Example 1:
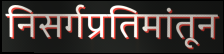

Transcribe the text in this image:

निसर्गप्रतिमांतून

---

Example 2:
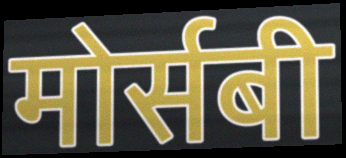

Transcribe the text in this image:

मोर्सबी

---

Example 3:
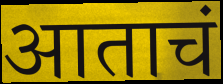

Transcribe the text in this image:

आताचं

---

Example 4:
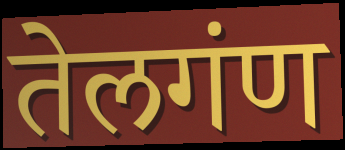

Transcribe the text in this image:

तेलगंण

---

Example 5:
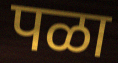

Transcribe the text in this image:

पळा